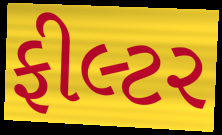
ફીલ્ટર